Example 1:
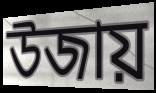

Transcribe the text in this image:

উজায়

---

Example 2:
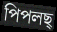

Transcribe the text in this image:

পিপলছ্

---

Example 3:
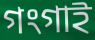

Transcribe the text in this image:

গংগাই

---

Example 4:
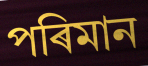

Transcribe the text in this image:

পৰিমান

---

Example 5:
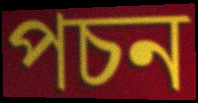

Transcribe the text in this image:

পচন